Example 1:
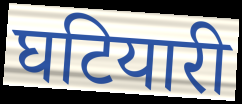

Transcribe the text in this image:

घटियारी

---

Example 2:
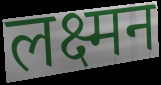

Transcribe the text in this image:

लक्ष्मन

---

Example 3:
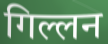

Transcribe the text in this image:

गिल्लन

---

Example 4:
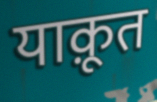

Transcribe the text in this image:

याक़ूत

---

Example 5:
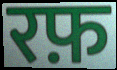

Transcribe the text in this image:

रफ़